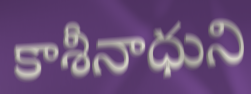
కాశీనాధుని